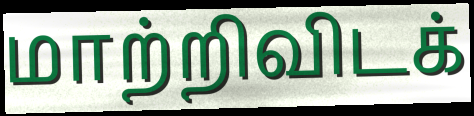
மாற்றிவிடக்